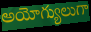
అయోగ్యులుగా